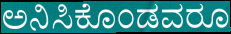
ಅನಿಸಿಕೊಂಡವರೂ